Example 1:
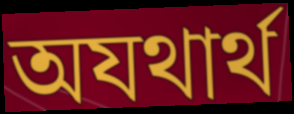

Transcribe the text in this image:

অযথার্থ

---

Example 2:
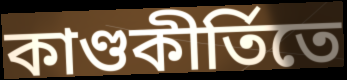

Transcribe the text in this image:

কাণ্ডকীর্তিতে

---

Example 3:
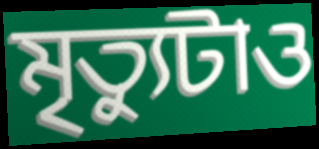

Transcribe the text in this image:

মৃত্যুটাও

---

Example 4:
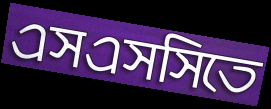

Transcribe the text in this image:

এসএসসিতে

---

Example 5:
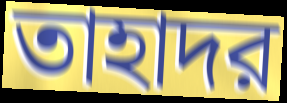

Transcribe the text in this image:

তাহাদর